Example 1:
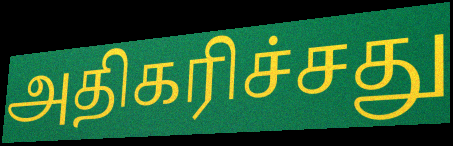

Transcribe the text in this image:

அதிகரிச்சது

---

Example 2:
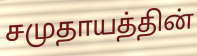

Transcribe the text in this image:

சமுதாயத்தின்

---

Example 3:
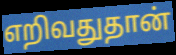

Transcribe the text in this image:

எறிவதுதான்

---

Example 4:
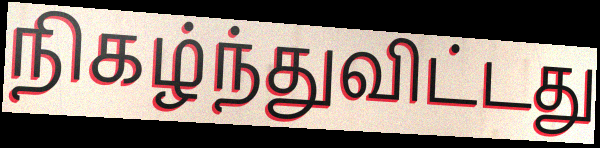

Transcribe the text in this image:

நிகழ்ந்துவிட்டது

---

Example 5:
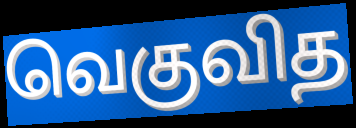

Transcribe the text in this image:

வெகுவித